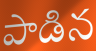
పాడిన